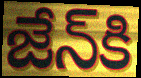
జేన్‌కి